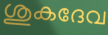
ശുകദേവ